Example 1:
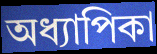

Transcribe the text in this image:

অধ্যাপিকা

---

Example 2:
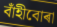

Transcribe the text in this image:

বাঁহীবোৰা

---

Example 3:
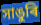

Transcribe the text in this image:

সাঙুৰি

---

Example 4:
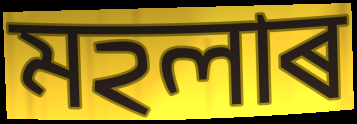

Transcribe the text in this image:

মহলাৰ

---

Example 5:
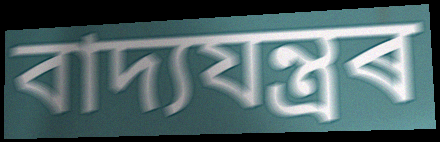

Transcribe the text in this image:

বাদ্যযন্ত্ৰৰ